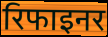
रिफाइनर